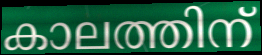
കാലത്തിന്